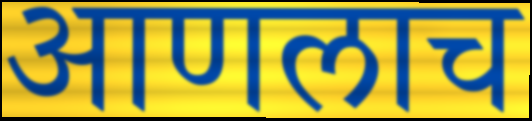
आणलाच